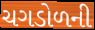
ચગડોળની